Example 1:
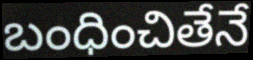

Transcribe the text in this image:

బంధించితేనే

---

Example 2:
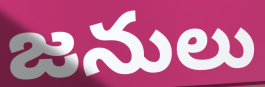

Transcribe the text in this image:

జనులు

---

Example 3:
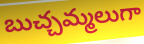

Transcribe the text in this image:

బుచ్చమ్మలుగా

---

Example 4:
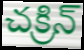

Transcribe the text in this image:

చక్రిన్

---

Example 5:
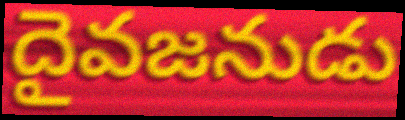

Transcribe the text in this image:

దైవజనుడు